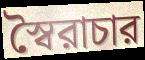
স্বৈরাচার